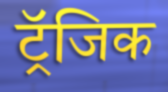
ट्रॅजिक